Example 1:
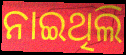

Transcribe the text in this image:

ନାଇଥିଲି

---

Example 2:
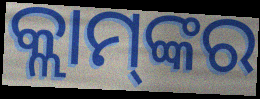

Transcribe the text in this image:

କ୍ଲାମ୍‌ଙ୍କର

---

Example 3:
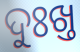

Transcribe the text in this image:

ଦୁଃଖ୍ତ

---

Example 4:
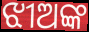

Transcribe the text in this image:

ଝୀଅଙ୍କ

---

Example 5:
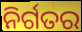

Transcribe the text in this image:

ନିର୍ଗତର